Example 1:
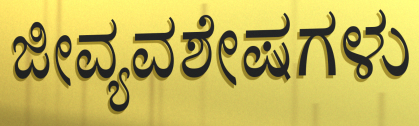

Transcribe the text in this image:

ಜೀವ್ಯವಶೇಷಗಳು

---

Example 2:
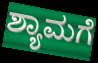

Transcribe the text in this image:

ಶ್ಯಾಮಗೆ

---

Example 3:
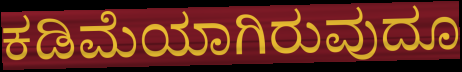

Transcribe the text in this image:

ಕಡಿಮೆಯಾಗಿರುವುದೂ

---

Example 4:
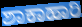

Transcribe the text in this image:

ಶಾಕಾಹಾರಿ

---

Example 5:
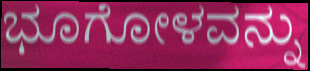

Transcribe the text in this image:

ಭೂಗೋಳವನ್ನು